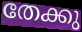
തേക്കു